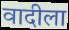
वादीला